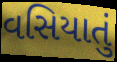
વસિયાતું